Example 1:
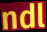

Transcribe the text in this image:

ndl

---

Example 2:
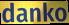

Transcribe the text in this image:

danko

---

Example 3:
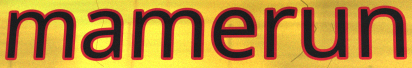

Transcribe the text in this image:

mamerun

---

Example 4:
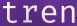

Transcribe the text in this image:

tren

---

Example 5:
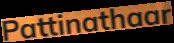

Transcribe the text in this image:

Pattinathaar